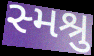
સ્મશ્રુ